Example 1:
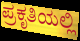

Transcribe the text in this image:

ಪ್ರಕೃತಿಯಲ್ಲಿ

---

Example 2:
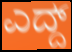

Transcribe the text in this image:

ಎದ್ದ್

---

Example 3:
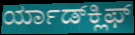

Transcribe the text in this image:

ರ್ಯಾಡ್‍ಕ್ಲಿಫ್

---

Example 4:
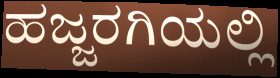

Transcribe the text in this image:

ಹಜ್ಜರಗಿಯಲ್ಲಿ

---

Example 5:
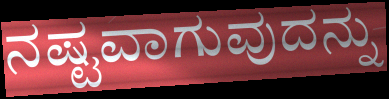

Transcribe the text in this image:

ನಷ್ಟವಾಗುವುದನ್ನು